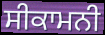
ਸੀਕਾਮਨੀ